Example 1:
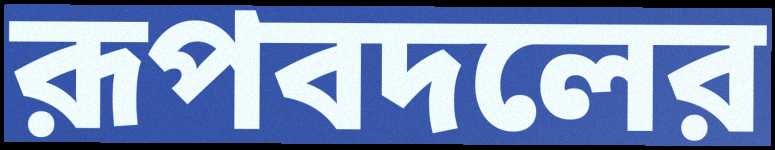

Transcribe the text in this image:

রূপবদলের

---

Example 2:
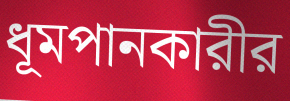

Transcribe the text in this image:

ধূমপানকারীর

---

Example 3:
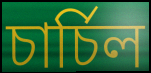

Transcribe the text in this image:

চার্চিল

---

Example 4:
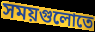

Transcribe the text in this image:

সময়গুলোতে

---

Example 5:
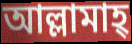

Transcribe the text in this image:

আল্লামাহ্